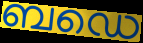
ബഡെ